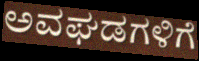
ಅವಘಡಗಳಿಗೆ